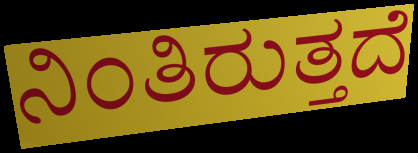
ನಿಂತಿರುತ್ತದೆ